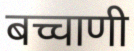
बच्चाणी